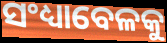
ସଂଧ୍ୟାବେଳକୁ